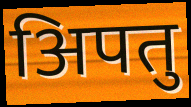
अिपतु